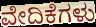
ವೇದಿಕೆಗಳು